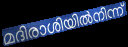
മദിരാശിയിൽനിന്ന്